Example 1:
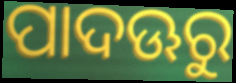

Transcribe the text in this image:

ପାଦଊରୁ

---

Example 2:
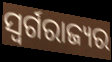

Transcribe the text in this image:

ସ୍ୱର୍ଗରାଜ୍ୟର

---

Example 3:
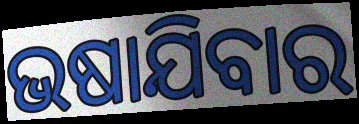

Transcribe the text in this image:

ଭଷାଯିବାର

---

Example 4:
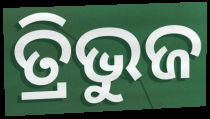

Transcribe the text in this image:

ତ୍ରିଭୁଜ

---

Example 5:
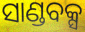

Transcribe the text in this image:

ସାଣ୍ଡବକ୍ସ